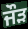
ਜੌੜ